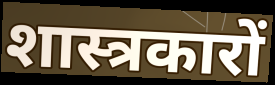
शास्त्रकारों